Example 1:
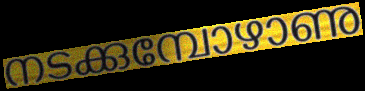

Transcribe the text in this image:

നടക്കുമ്പോഴാണു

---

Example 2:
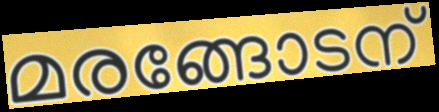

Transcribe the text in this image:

മരങ്ങോടന്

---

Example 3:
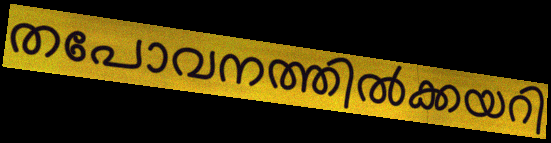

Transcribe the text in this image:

തപോവനത്തിൽക്കയറി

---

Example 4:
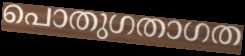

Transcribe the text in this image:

പൊതുഗതാഗത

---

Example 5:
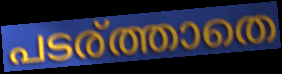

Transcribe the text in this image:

പടര്ത്താതെ